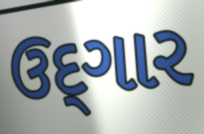
ઉદ્‌ગાર